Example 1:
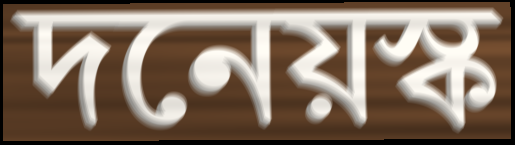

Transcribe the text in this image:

দনেয়স্ক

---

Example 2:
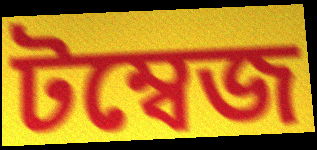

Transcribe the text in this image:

টম্বেজ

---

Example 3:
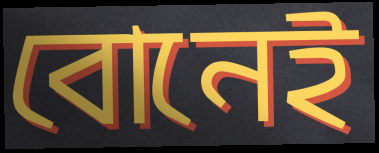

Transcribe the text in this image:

বোনেই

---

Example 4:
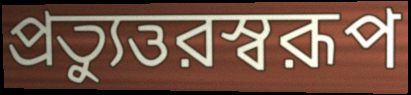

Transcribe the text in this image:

প্রত্যুত্তরস্বরূপ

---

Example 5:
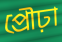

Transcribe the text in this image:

প্রৌঢ়া